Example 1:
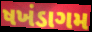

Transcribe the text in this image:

ષખંડાગમ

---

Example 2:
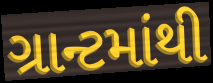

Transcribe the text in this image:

ગ્રાન્ટમાંથી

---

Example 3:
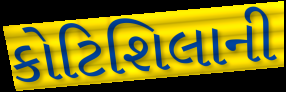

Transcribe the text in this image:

કોટિશિલાની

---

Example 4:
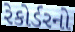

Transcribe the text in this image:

રેકોર્ડરનો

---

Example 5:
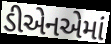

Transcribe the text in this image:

ડીએનએમાં